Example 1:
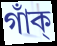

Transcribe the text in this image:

গাঁক্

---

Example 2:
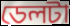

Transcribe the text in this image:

ডেলটা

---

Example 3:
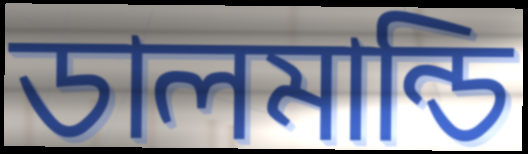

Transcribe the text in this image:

ডালমান্ডি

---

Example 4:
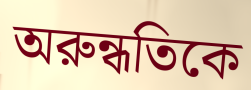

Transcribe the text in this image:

অরুন্ধতিকে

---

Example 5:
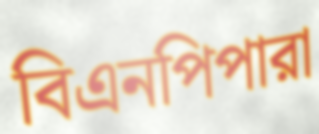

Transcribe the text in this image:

বিএনপিপারা